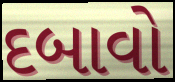
દબાવો